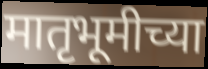
मातृभूमीच्या